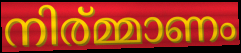
നിര്മ്മാണം